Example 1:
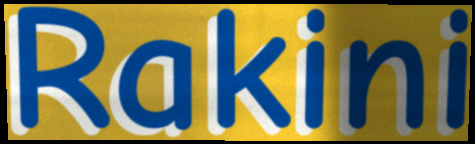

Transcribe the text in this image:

Rakini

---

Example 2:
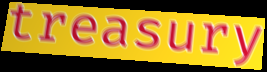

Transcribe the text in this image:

treasury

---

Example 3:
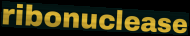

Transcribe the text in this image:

ribonuclease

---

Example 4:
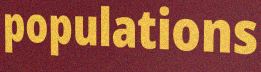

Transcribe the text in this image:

populations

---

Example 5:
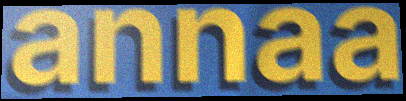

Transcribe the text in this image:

annaa